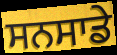
ਸਨਸਾਡੇ